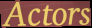
Actors